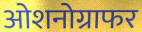
ओशनोग्राफर